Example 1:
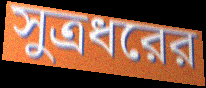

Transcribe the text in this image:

সুত্রধরের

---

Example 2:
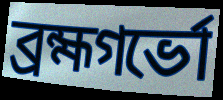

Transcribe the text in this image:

ব্রহ্মগর্ভো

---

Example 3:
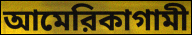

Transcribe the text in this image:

আমেরিকাগামী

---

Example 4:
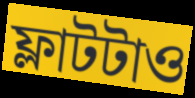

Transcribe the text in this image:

ফ্লাটটাও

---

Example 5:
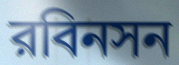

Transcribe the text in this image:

রবিনসন